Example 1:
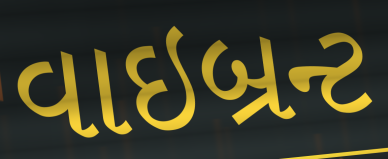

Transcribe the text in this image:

વાઇબ્રન્ટ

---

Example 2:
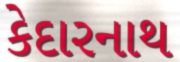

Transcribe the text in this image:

કેદારનાથ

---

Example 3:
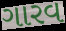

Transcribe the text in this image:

ગારવ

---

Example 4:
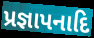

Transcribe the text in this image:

પ્રજ્ઞાપનાદિ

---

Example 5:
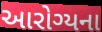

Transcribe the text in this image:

આરોગ્યના